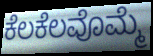
ಕೆಲಕೆಲವೊಮ್ಮೆ